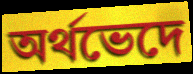
অর্থভেদে